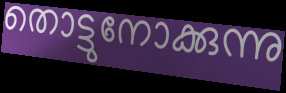
തൊട്ടുനോക്കുന്നു